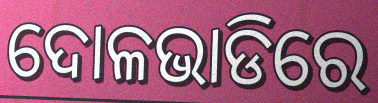
ଦୋଳଭାଡିରେ